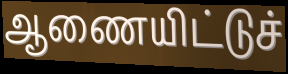
ஆணையிட்டுச்